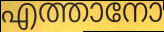
എത്താനോ